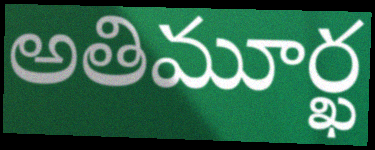
అతిమూర్ఖ